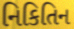
નિકિતિન